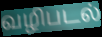
வழிபடல்